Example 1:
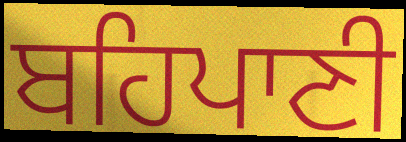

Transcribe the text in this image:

ਬਹਿਪਾਣੀ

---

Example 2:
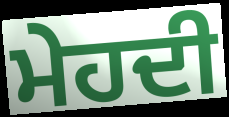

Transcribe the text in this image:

ਮੇਹਦੀ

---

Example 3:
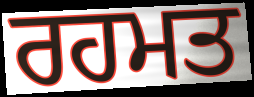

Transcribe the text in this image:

ਰਹਮਤ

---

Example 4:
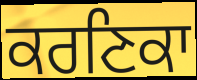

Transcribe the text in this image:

ਕਰਣਿਕਾ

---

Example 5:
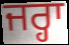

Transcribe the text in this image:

ਜਰ੍ਹਾ